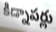
కిడ్నాపర్లు